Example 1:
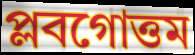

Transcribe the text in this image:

প্লবগোত্তম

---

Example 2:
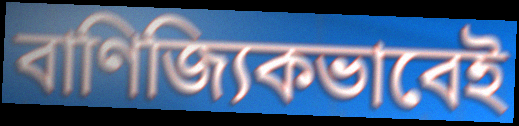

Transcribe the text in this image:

বাণিজ্যিকভাবেই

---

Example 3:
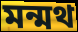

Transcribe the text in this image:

মন্মথ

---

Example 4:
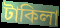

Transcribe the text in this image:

টাকিলা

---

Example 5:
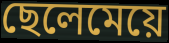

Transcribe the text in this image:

ছেলেমেয়ে